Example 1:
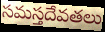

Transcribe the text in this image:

సమస్తదేవతలు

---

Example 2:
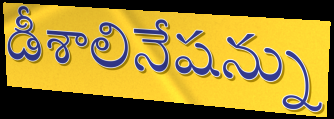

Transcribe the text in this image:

డీశాలినేషన్ను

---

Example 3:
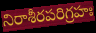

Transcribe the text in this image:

నిరాశీరపరిగ్రహః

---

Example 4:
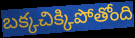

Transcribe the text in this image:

బక్కచిక్కిపోతోంది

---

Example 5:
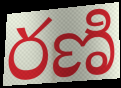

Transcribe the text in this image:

రణి